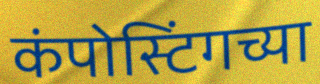
कंपोस्टिंगच्या